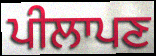
ਪੀਲਾਪਣ